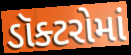
ડૉક્ટરોમાં